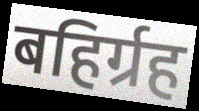
बहिर्ग्रह